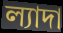
ল্যাদা